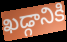
ఖడ్గానికి